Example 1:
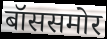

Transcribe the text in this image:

बॉससमोर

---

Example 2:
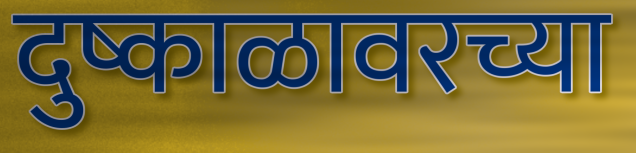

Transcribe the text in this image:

दुष्काळावरच्या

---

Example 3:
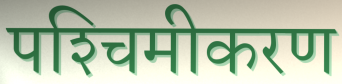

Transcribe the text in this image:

पश्चिमीकरण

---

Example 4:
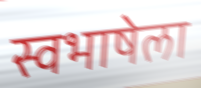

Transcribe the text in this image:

स्वभाषेला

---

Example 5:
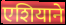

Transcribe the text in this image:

एशियाने